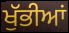
ਖੁੱਭੀਆਂ